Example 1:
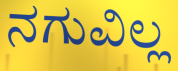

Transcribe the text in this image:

ನಗುವಿಲ್ಲ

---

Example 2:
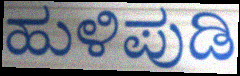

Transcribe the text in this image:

ಹುಳಿಪುಡಿ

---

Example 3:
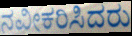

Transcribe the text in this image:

ನವೀಕರಿಸಿದರು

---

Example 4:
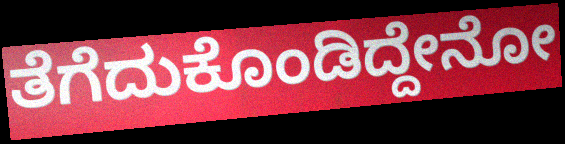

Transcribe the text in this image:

ತೆಗೆದುಕೊಂಡಿದ್ದೇನೋ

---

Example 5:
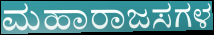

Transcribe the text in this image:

ಮಹಾರಾಜಸಗಳ